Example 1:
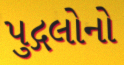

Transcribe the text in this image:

પુદ્ગલોનો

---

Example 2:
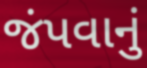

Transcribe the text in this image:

જંપવાનું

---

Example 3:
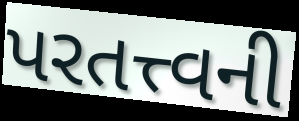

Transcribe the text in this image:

પરતત્ત્વની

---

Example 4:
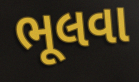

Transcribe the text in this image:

ભૂલવા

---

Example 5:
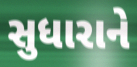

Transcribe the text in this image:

સુધારાને